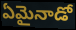
ఏమైనాడో